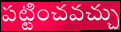
పట్టించవచ్చు